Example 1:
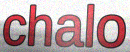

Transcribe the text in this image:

chalo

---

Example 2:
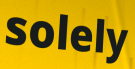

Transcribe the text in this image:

solely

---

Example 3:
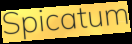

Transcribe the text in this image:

Spicatum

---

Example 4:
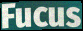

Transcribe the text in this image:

Fucus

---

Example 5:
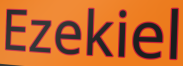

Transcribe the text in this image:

Ezekiel